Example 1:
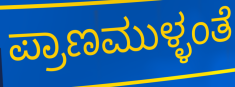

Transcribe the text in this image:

ಪ್ರಾಣಮುಳ್ಳಂತೆ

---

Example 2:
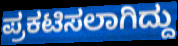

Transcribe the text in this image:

ಪ್ರಕಟಿಸಲಾಗಿದ್ದು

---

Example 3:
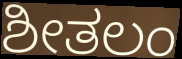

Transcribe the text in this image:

ಶೀತಲಂ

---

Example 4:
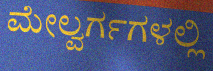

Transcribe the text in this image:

ಮೇಲ್ವರ್ಗಗಳಲ್ಲಿ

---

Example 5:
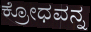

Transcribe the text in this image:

ಕ್ರೋಧವನ್ನ